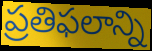
ప్రతిఫలాన్ని